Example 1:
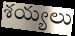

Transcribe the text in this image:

శయ్యలు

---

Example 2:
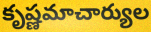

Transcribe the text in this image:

కృష్ణమాచార్యుల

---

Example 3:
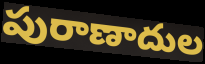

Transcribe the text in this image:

పురాణాదుల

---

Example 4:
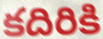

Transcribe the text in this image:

కదిరికి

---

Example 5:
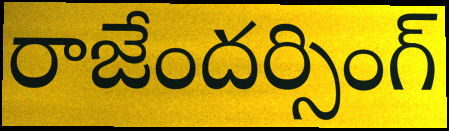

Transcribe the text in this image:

రాజేందర్సింగ్